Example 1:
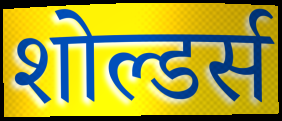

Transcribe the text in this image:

शोल्डर्स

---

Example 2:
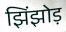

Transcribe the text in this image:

झिंझोड़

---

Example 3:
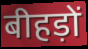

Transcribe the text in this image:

बीहड़ों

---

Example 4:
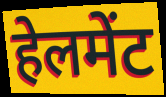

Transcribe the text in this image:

हेलमेंट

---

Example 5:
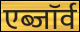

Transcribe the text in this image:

एब्जॉर्व